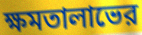
ক্ষমতালাভের